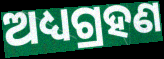
ଅଧ୍ୟଗ୍ରହଣ